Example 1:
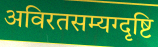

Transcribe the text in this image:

अविरतसम्यग्दृष्टि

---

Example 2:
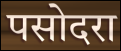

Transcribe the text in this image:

पसोदरा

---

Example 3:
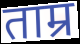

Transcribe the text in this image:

ताम्र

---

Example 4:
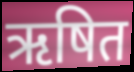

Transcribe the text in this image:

ऋषित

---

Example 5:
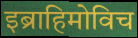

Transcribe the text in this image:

इब्राहिमोविच